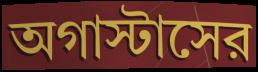
অগাস্টাসের